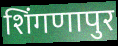
शिंगणापुर